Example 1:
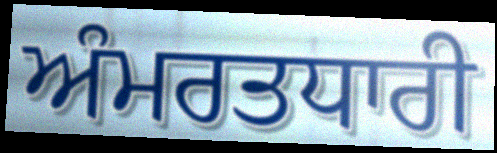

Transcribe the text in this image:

ਅੰਮਰਤਧਾਰੀ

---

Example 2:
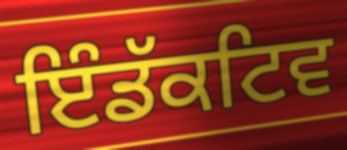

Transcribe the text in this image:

ਇੰਡੱਕਟਿਵ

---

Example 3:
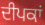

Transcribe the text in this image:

ਦੀਪਕਾਂ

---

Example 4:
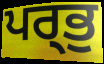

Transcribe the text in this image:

ਪਰ੍ਭੁ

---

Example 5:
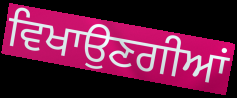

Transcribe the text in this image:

ਵਿਖਾਉਣਗੀਆਂ